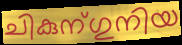
ചികുന്ഗുനിയ